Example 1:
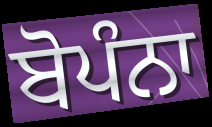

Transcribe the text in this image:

ਬੋਪੰਨਾ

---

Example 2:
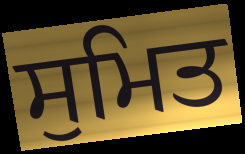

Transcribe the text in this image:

ਸੁਮਿਤ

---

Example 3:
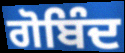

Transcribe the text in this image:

ਗੋਬਿੰਦ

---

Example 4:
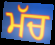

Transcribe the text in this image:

ਮੱਚ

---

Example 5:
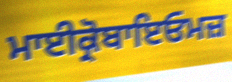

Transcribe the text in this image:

ਮਾਈਕ੍ਰੋਬਾਇਓਮਜ਼